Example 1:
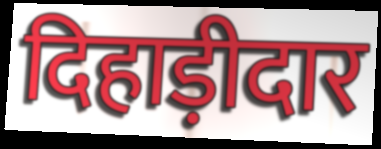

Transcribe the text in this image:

दिहाड़ीदार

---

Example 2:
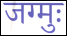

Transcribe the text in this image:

जग्मुः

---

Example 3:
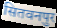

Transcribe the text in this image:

सितवनपुर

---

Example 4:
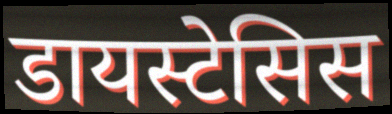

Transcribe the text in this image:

डायस्टेसिस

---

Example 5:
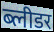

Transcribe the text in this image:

ब्लीडर